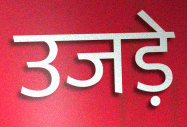
उजड़े